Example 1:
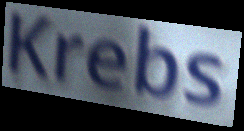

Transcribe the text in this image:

Krebs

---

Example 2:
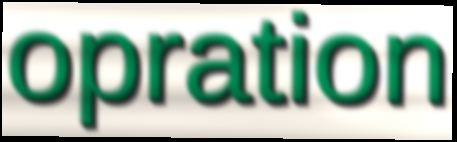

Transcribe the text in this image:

opration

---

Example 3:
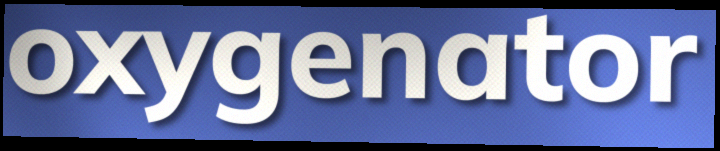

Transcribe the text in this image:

oxygenator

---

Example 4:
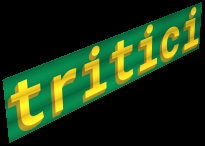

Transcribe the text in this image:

tritici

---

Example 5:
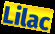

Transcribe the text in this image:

Lilac